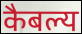
कैबल्य